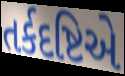
તર્કદષ્ટિએ